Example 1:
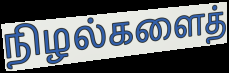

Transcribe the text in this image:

நிழல்களைத்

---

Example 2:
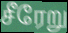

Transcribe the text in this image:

சீரேறு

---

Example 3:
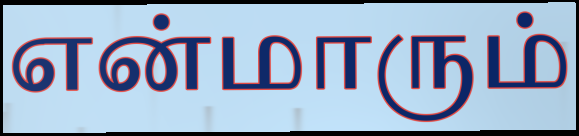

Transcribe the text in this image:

என்மாரும்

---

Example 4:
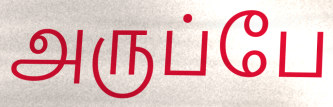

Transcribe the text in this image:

அருப்பே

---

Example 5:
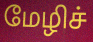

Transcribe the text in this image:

மேழிச்